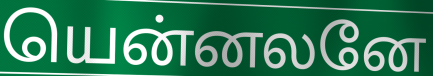
யென்னலனே